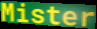
Mister